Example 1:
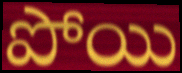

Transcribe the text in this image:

పోయి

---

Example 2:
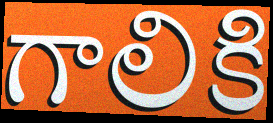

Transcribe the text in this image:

గాలికి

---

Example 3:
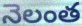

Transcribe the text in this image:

నెలంత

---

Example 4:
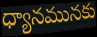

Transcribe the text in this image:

ధ్యానమునకు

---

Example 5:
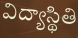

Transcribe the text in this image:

విద్యాస్థితి